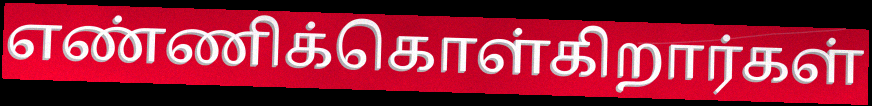
எண்ணிக்கொள்கிறார்கள்